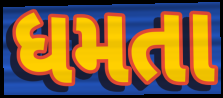
ધમતા